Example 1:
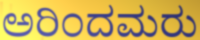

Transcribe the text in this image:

ಅರಿಂದಮರು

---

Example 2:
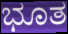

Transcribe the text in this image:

ಭೂತ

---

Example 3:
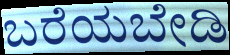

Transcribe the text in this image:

ಬರೆಯಬೇಡಿ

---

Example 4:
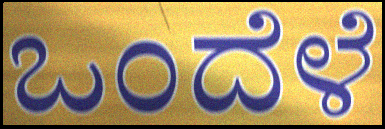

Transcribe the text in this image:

ಒಂದೆಳೆ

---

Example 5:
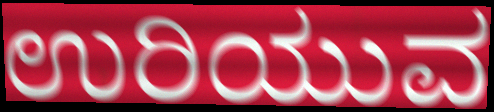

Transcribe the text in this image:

ಉರಿಯುವ